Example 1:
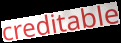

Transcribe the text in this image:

creditable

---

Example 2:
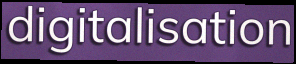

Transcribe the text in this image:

digitalisation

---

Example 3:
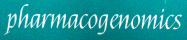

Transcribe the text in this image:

pharmacogenomics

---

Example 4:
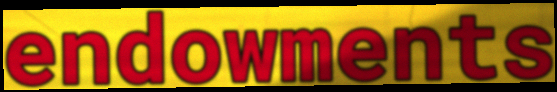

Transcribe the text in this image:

endowments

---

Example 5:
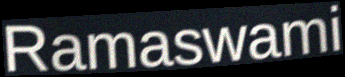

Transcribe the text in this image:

Ramaswami